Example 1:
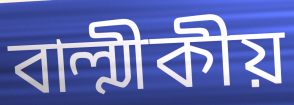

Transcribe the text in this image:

বাল্মীকীয়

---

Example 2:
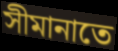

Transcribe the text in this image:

সীমানাতে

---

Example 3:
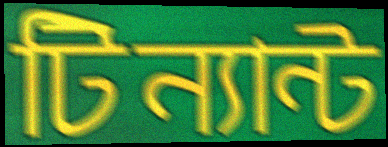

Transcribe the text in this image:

টিন্যান্ট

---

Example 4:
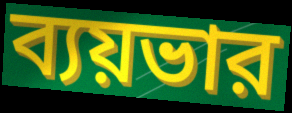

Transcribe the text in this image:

ব্যয়ভার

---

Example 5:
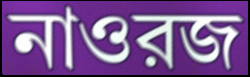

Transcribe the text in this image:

নাওরজ